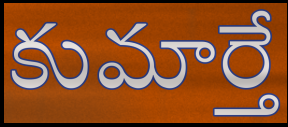
కుమార్తే